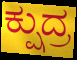
ಕ್ಷುದ್ರ